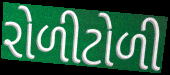
રોળીટોળી